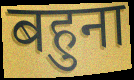
बहुना